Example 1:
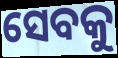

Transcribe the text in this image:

ସେବକୁ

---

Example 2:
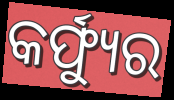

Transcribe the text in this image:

କର୍ଫ୍ୟୁର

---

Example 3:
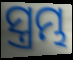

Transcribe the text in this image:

ସ୍ତ୍ରମ୍ଭ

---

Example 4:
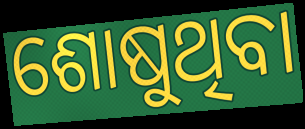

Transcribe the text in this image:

ଶୋଷୁଥିବା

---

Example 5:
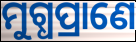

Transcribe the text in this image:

ମୁଗ୍ଧପ୍ରାଣେ